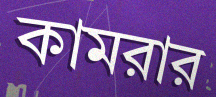
কামরার